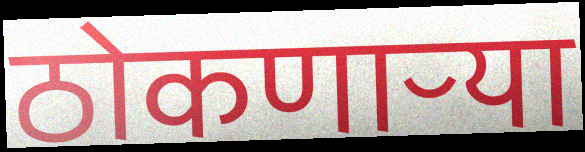
ठोकणाऱ्या